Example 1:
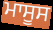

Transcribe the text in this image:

ਮਾਸੂਸ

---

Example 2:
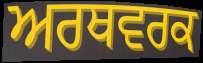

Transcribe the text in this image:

ਅਰਥਵਰਕ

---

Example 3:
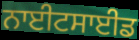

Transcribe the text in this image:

ਨਾਈਟਸਾਈਡ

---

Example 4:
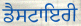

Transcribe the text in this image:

ਡੈਸਟਾਇਰੀ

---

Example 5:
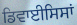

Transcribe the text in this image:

ਡਿਵਾਈਸਿਸਾਂ